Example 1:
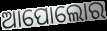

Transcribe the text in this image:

ଆପୋଲୋର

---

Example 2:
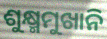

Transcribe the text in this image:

ଶୁକ୍ଷ୍ମମୁଖାନି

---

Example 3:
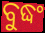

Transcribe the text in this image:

ବୁଦ୍ଧଂ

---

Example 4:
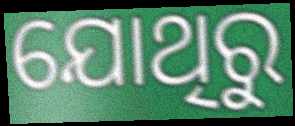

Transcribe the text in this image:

ଯୋଥିରୁ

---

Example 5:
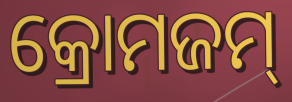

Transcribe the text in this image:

କ୍ରୋମଜମ୍